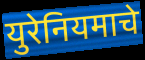
युरेनियमाचे